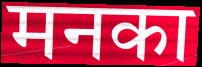
मनका